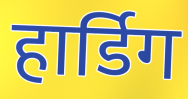
हार्डिग